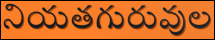
నియతగురువుల